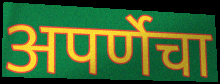
अपर्णेचा